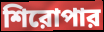
শিরোপার